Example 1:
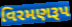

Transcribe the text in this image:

વિરમણરૂપ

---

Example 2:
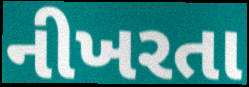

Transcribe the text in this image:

નીખરતા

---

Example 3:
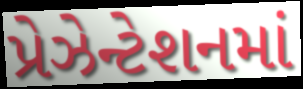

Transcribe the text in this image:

પ્રેઝેન્ટેશનમાં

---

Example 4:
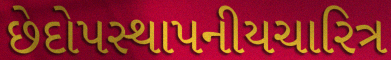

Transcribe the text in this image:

છેદોપસ્થાપનીયચારિત્ર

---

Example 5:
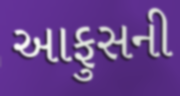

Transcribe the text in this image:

આફુસની